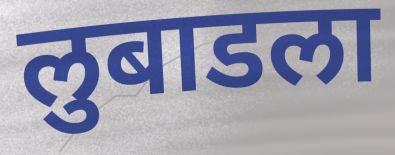
लुबाडला